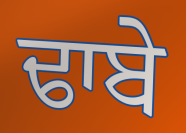
ਢਾਬੇ